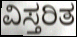
ವಿಸ್ತರಿತ